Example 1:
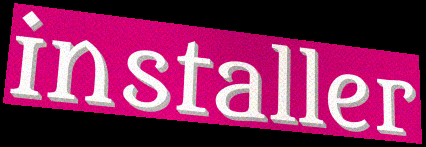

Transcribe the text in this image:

installer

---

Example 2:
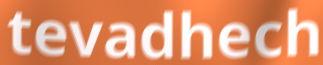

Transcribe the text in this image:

tevadhech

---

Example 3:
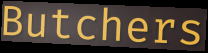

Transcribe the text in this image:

Butchers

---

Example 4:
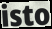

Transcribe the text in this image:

isto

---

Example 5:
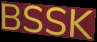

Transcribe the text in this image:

BSSK